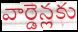
వార్డెన్లకు